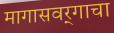
मागासवर्गाचा